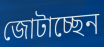
জোটাচ্ছেন